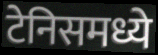
टेनिसमध्ये